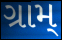
ગ્રામ્